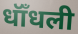
धॉँधली